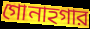
গোনাহগার